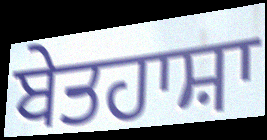
ਬੇਤਹਾਸ਼ਾ